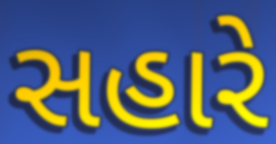
સહારે